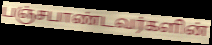
பஞ்சபாண்டவர்களின்